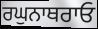
ਰਘੁਨਾਥਰਾਓ